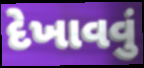
દેખાવવું